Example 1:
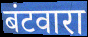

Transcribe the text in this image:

बंटवारा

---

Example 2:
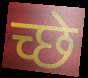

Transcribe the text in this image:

च्छे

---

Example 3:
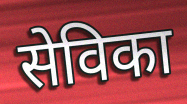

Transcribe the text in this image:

सेविका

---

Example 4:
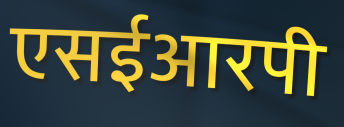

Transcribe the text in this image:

एसईआरपी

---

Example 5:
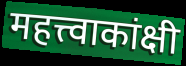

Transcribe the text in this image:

महत्त्वाकांक्षी